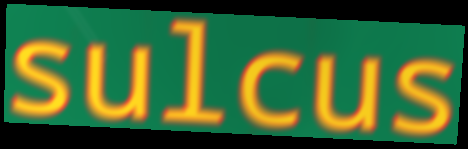
sulcus